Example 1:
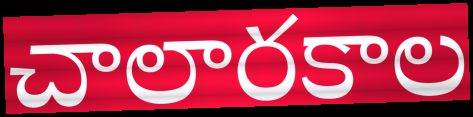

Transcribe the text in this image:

చాలారకాల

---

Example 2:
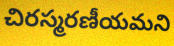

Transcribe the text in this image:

చిరస్మరణీయమని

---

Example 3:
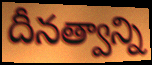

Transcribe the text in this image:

దీనత్వాన్ని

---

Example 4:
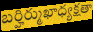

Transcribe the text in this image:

బర్హిర్ముఖాధ్యక్షతా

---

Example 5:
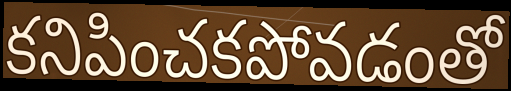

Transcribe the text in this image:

కనిపించకపోవడంతో